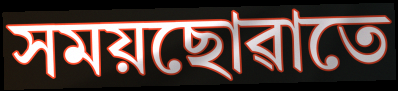
সময়ছোৱাতে